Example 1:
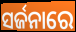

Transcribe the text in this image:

ସର୍ଜନାରେ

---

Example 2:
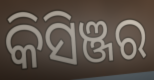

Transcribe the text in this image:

କିସିଞ୍ଜର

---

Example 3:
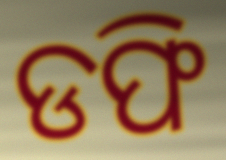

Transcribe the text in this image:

ଡଫି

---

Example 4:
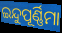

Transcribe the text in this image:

ଇନ୍ଦୁପୂର୍ଣ୍ଣିମା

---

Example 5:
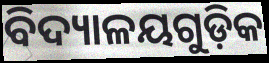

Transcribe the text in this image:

ବିଦ୍ୟାଳୟଗୁଡ଼ିକ